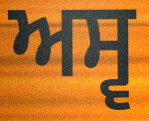
ਅਸ੍ਵ